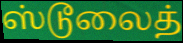
ஸ்டூலைத்